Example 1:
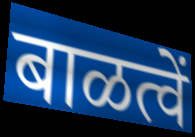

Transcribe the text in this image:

बाळत्वें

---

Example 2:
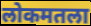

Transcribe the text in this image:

लोकमतला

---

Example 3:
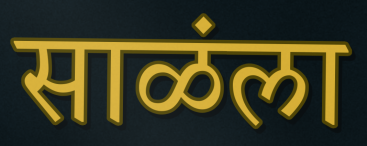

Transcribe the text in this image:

साळंला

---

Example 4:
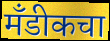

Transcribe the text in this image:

मँडीकचा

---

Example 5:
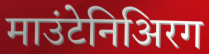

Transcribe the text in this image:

माउंटेनिअिरग